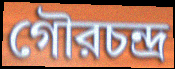
গৌরচন্দ্র